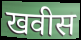
खवीस